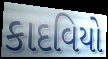
કાદવિયો